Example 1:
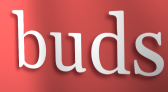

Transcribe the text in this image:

buds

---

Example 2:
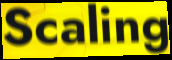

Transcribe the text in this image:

Scaling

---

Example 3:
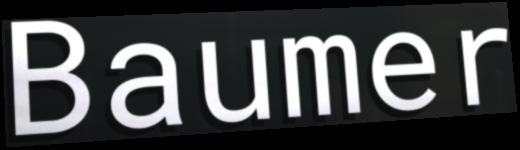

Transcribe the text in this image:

Baumer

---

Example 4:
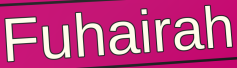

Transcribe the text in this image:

Fuhairah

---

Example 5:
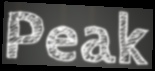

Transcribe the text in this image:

Peak